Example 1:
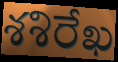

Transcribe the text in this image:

శశిరేఖ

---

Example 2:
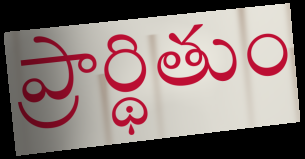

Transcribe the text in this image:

ప్రార్థితుం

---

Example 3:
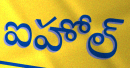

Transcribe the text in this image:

ఐహోల్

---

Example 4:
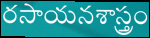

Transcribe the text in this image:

రసాయనశాస్త్రం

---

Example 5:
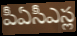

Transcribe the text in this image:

పీఏసీఎస్ల